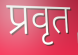
प्रवृत